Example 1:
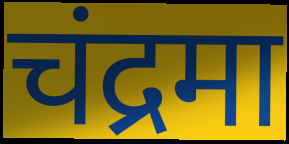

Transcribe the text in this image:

चंद्रमा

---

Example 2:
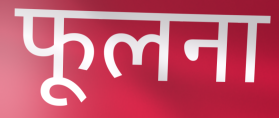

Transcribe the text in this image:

फूलना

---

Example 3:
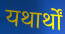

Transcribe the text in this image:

यथार्थों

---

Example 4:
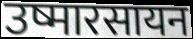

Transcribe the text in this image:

उष्मारसायन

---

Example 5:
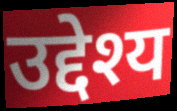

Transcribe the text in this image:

उद्देश्य